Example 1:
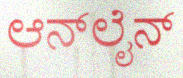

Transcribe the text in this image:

ಆನ್‍ಲೈನ್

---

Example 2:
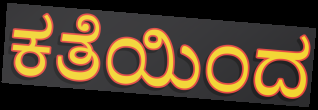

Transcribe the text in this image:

ಕತೆಯಿಂದ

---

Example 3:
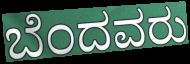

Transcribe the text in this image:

ಬೆಂದವರು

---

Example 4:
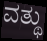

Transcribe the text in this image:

ವತ್ಥು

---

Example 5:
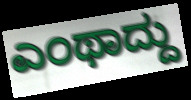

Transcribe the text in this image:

ಎಂಥಾದ್ದು